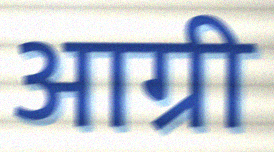
आग्री